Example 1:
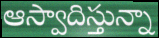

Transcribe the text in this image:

ఆస్వాదిస్తున్నా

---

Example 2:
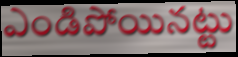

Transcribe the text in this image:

ఎండిపోయినట్టు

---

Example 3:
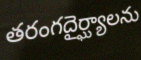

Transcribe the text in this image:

తరంగదైర్ఘ్యాలను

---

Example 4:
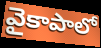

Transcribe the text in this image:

వైకాపాలో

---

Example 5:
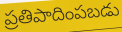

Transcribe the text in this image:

ప్రతిపాదింపబడు